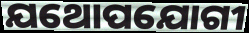
ଯଥୋପଯୋଗୀ